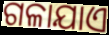
ଗଳାଯାଏ